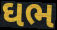
ઘભ